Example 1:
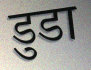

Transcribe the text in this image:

डुडा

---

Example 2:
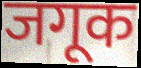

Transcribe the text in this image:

जगूक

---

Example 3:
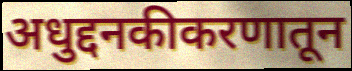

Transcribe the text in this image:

अधुद्दनकीकरणातून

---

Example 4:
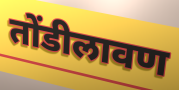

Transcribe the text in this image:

तोंडीलावण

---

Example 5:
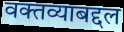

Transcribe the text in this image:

वक्तव्याबद्दल